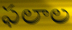
ఫలాల